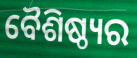
ବୈଶିଷ୍ଠ୍ୟର